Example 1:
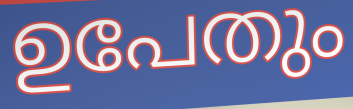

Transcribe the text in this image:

ഉപേതും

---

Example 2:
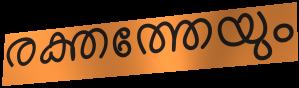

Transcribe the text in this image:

രക്തത്തേയും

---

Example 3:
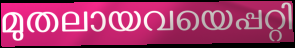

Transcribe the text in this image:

മുതലായവയെപ്പറ്റി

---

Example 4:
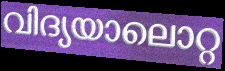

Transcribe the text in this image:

വിദ്യയാലൊറ്റ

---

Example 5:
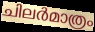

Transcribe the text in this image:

ചിലർമാത്രം